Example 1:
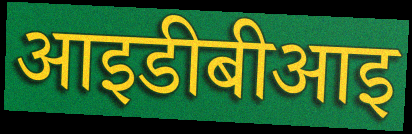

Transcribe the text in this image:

आइडीबीआइ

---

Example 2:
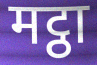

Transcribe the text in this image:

मट्ठा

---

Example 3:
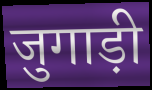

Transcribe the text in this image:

जुगाड़ी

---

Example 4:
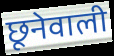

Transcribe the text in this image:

छूनेवाली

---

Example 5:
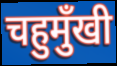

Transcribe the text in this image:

चहुमुँखी